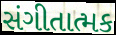
સંગીતાત્મક